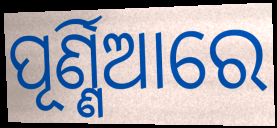
ପୂର୍ଣ୍ଣିଆରେ